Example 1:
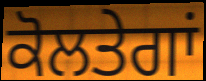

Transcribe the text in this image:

ਕੋਲਤੇਗਾਂ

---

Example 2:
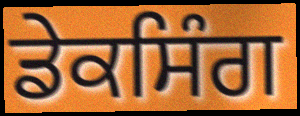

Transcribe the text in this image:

ਡੇਕਸਿੰਗ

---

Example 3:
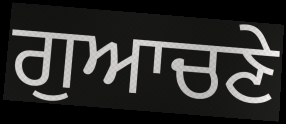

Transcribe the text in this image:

ਗੁਆਚਣੇ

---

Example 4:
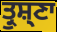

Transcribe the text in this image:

ਤ੍ਰੁਸ਼੍ਣਾ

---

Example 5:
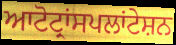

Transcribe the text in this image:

ਆਟੋਟ੍ਰਾਂਸਪਲਾਂਟੇਸ਼ਨ